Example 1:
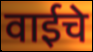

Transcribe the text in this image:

वाईचे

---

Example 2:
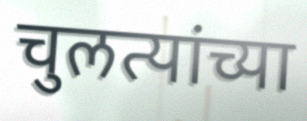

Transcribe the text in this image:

चुलत्यांच्या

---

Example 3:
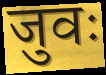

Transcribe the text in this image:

जुवः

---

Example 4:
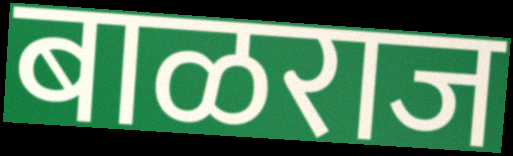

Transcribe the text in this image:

बाळराज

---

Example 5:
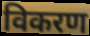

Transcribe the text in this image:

विकरण